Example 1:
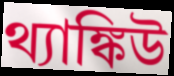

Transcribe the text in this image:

থ্যাঙ্কিউ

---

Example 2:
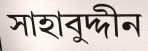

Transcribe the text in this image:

সাহাবুদ্দীন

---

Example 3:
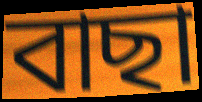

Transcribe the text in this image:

বাছা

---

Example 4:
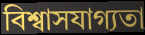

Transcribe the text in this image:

বিশ্বাসযাগ্যতা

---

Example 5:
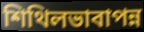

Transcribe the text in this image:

শিথিলভাবাপন্ন